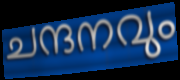
ചന്ദനവും